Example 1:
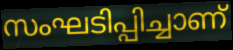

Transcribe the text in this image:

സംഘടിപ്പിച്ചാണ്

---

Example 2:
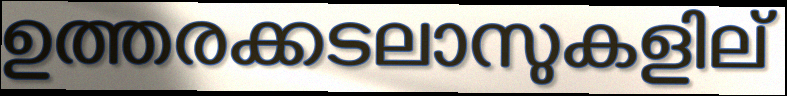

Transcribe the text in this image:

ഉത്തരക്കടലാസുകളില്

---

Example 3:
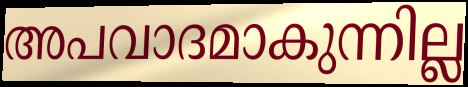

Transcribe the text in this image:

അപവാദമാകുന്നില്ല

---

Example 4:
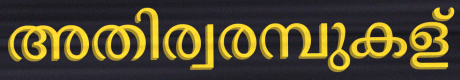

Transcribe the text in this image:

അതിര്വരമ്പുകള്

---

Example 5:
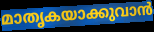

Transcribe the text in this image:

മാതൃകയാക്കുവാൻ